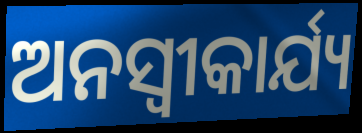
ଅନସ୍ୱୀକାର୍ଯ୍ୟ